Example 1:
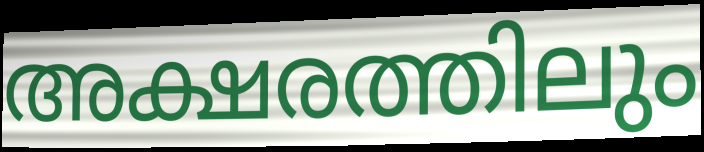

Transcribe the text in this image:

അക്ഷരത്തിലും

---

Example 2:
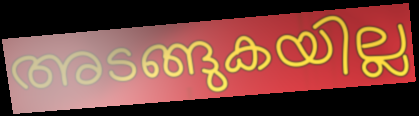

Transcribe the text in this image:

അടങ്ങുകയില്ല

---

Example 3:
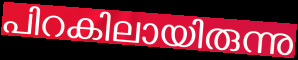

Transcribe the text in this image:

പിറകിലായിരുന്നു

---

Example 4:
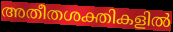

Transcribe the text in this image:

അതീതശക്തികളിൽ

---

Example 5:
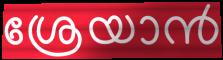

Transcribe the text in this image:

ശ്രേയാൻ